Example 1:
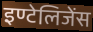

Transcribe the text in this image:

इण्टेलिजेंस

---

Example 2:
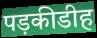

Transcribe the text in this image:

पड़कीडीह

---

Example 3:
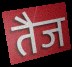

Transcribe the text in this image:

तैज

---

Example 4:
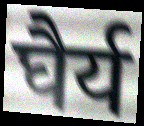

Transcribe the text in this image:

घैर्य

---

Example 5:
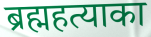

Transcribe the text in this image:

ब्रह्महत्याका